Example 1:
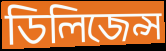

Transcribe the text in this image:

ডিলিজেন্স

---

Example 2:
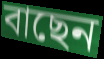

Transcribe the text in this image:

বাছেন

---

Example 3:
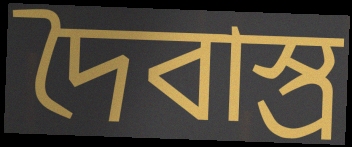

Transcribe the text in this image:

দৈবাস্ত্র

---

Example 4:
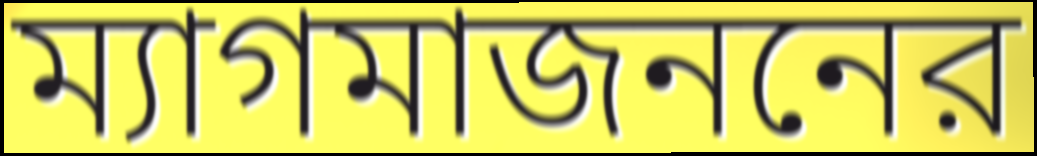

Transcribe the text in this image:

ম্যাগমাজননের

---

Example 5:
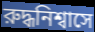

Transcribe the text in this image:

রুদ্ধনিশ্বাসে